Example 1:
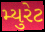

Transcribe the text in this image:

મ્યુરેટ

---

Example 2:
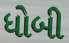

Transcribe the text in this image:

ધોબી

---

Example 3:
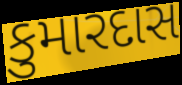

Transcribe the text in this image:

કુમારદાસ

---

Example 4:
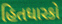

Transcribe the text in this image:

હિતધારકો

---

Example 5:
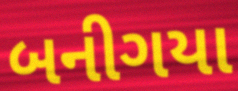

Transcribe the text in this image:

બનીગયા